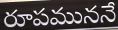
రూపముననే